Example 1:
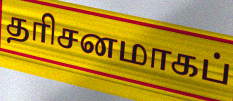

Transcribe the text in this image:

தரிசனமாகப்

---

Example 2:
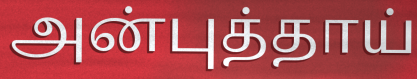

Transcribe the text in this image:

அன்புத்தாய்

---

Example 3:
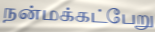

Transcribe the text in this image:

நன்மக்கட்பேறு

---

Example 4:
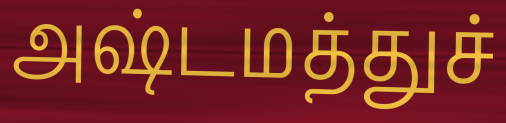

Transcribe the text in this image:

அஷ்டமத்துச்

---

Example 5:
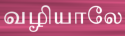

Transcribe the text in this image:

வழியாலே